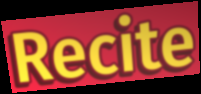
Recite